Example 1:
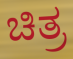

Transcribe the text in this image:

ಚಿತ್ರ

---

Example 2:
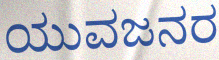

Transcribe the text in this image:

ಯುವಜನರ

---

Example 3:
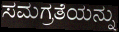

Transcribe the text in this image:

ಸಮಗ್ರತೆಯನ್ನು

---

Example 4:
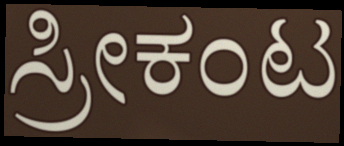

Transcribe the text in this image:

ಸ್ರೀಕಂಟ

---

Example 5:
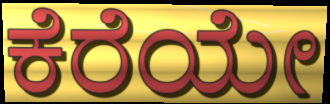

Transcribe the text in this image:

ಕೆರೆಯೇ